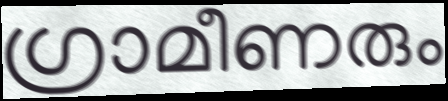
ഗ്രാമീണരും